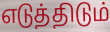
எடுத்திடும்